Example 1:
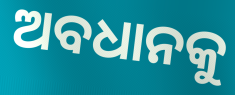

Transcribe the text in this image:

ଅବଧାନକୁ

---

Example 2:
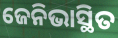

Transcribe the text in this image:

ଜେନିଭାସ୍ଥିତ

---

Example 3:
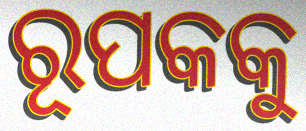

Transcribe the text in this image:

ରୂପକକୁ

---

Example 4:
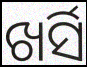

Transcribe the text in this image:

ଖର୍ସି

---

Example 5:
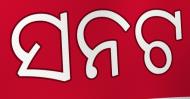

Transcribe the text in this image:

ସନଟ